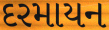
દરમાયન